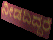
ನೀಡದಿದ್ದರೆ